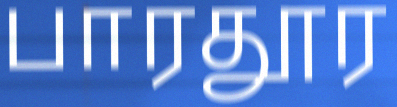
பாரதூர